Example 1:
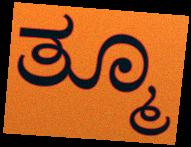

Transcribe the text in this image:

ತ್ಮೂ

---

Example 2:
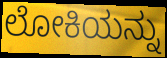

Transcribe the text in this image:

ಲೋಕಿಯನ್ನು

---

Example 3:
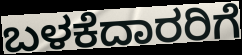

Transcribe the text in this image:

ಬಳಕೆದಾರರಿಗೆ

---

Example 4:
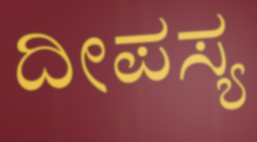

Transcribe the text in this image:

ದೀಪಸ್ಯ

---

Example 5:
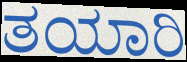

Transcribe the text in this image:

ತಯಾರಿ